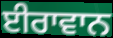
ਈਰਾਵਾਨ